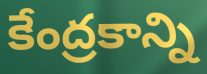
కేంద్రకాన్ని